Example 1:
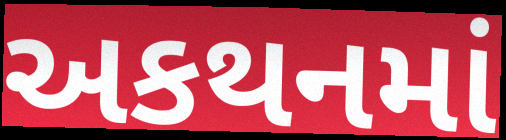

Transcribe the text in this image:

અકથનમાં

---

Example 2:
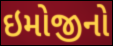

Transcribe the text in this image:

ઇમોજીનો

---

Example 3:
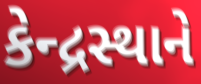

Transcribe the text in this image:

કેન્દ્રસ્થાને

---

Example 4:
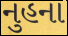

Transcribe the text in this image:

નુહના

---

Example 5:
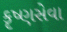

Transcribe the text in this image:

કૃષ્ણસેવા